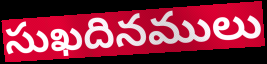
సుఖదినములు